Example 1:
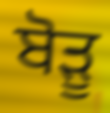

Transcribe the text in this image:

ਬੋੜੂ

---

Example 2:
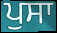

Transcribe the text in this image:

ਪੁਸਾ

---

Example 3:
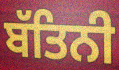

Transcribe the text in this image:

ਬੱਤਿਨੀ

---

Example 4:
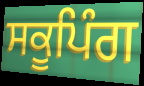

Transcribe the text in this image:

ਸਕੂਪਿੰਗ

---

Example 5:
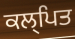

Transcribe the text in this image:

ਕਲ੍ਪਿਤ